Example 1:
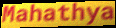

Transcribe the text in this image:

Mahathya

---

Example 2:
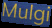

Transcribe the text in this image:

Mulgi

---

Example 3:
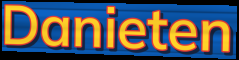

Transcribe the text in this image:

Danieten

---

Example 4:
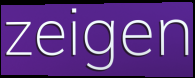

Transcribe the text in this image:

zeigen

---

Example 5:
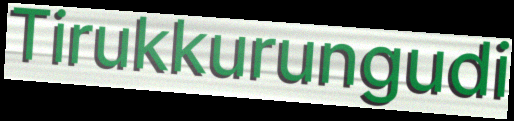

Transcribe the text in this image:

Tirukkurungudi